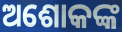
ଅଶୋକଙ୍କ